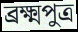
ব্ৰক্ষ্মপুত্ৰ